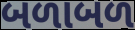
બળાબળ